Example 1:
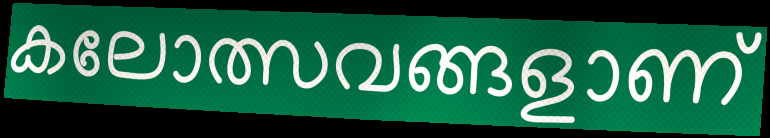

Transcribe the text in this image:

കലോത്സവങ്ങളാണ്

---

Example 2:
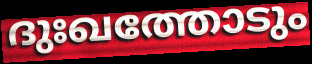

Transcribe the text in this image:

ദുഃഖത്തോടും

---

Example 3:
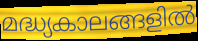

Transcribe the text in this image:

മദ്ധ്യകാലങ്ങളിൽ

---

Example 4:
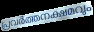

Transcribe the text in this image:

പ്രവർത്തനക്ഷമവും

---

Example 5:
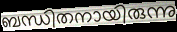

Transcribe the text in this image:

ബന്ധിതനായിരുന്നു